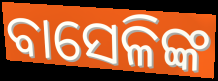
ବାସେଳିଙ୍କ